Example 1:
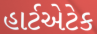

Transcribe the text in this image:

હાર્ટએટેક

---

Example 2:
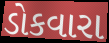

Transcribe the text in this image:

ડોકવારા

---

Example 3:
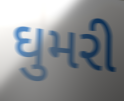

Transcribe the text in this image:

ઘુમરી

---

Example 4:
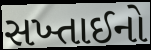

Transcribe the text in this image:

સખ્તાઈનો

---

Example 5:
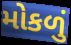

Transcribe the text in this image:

મોકળું